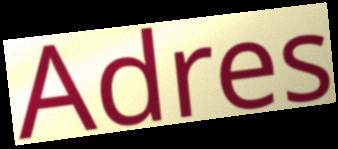
Adres